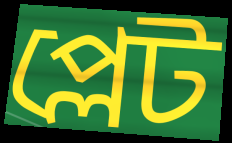
প্লেট